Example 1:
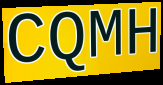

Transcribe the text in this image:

CQMH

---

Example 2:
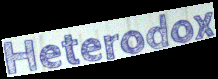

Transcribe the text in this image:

Heterodox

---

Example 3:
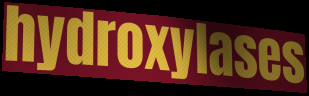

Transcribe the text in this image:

hydroxylases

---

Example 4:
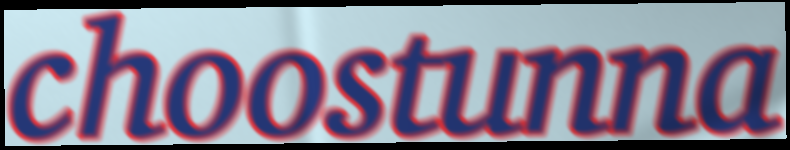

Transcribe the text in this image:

choostunna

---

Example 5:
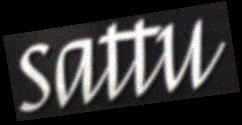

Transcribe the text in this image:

sattu